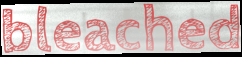
bleached